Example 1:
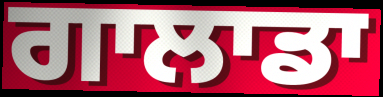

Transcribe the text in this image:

ਗਾਲਾਡਾ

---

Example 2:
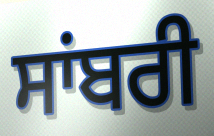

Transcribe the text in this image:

ਸਾਂਬਰੀ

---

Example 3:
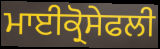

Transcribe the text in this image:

ਮਾਈਕ੍ਰੋਸੇਫਲੀ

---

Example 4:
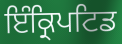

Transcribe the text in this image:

ਇੰਕ੍ਰਿਪਟਿਡ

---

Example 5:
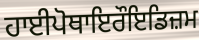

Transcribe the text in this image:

ਹਾਈਪੋਥਾਇਰੌਇਡਿਜ਼ਮ